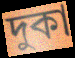
দুকা